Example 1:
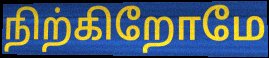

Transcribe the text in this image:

நிற்கிறோமே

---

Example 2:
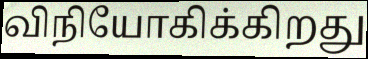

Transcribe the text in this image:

விநியோகிக்கிறது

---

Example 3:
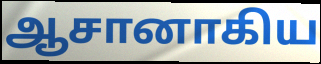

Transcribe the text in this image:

ஆசானாகிய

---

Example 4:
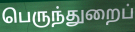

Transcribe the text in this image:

பெருந்துறைப்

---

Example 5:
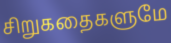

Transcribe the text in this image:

சிறுகதைகளுமே